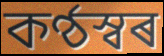
কণ্ঠস্বৰ